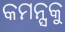
କମନ୍ସକୁ